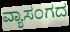
ವ್ಯಾಸಂಗದ